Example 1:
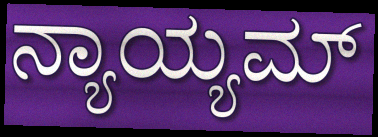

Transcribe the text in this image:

ನ್ಯಾಯ್ಯಮ್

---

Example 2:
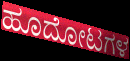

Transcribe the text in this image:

ಹೂದೋಟಗಳ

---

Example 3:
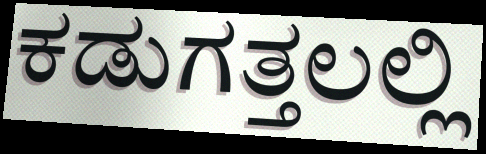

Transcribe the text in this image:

ಕಡುಗತ್ತಲಲ್ಲಿ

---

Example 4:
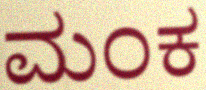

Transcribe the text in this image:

ಮಂಕ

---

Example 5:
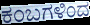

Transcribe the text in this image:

ಕಂಬಗಳಿಂದ